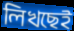
লিখছেই